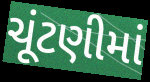
ચૂંટણીમાં